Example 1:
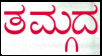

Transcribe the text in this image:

ತಮ್ಗದ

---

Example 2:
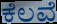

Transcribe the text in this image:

ಕೆಲವೆ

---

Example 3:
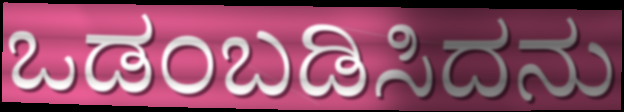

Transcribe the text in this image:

ಒಡಂಬಡಿಸಿದನು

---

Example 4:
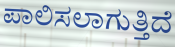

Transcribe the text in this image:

ಪಾಲಿಸಲಾಗುತ್ತಿದೆ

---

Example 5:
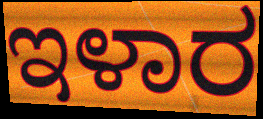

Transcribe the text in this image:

ಇಳಾರ